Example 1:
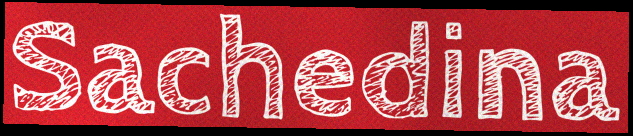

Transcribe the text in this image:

Sachedina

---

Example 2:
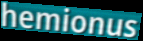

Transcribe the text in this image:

hemionus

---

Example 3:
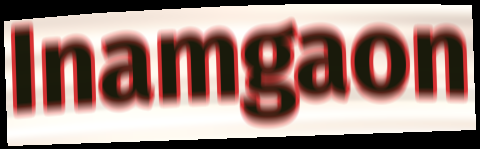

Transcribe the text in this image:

Inamgaon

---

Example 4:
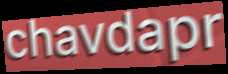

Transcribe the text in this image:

chavdapr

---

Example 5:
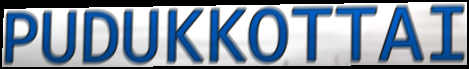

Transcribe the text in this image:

PUDUKKOTTAI